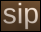
sip